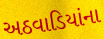
અઠવાડિયાંના